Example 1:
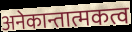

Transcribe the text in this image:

अनेकान्तात्मकत्व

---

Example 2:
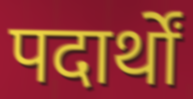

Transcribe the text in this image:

पदार्थों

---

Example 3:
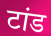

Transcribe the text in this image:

टांड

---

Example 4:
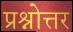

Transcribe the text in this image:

प्रश्नोत्तर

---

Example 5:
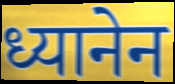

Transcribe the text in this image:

ध्यानेन